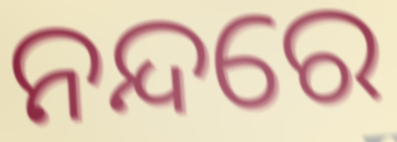
ନନ୍ଦରେ